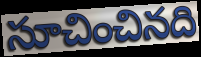
సూచించినది